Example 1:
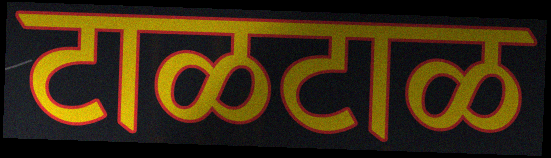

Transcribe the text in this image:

टाळटाळ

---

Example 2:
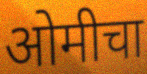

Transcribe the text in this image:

ओमीचा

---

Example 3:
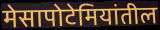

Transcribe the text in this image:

मेसापोटेमियांतील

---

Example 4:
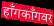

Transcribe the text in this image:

हाँगकाँगवर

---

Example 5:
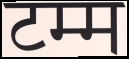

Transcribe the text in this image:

टम्म